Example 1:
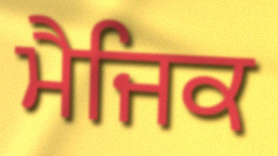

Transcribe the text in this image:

ਮੈਜਿਕ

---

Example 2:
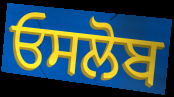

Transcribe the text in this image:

ਓਸਲੋਬ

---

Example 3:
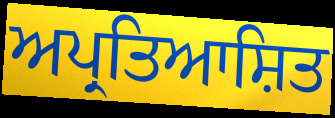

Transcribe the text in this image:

ਅਪ੍ਰਤਿਆਸ਼ਿਤ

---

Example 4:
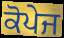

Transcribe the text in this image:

ਕੋਪੇਜ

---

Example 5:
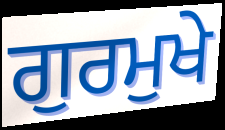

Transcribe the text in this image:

ਗੁਰਮੁਖੇ